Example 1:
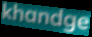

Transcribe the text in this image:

khandge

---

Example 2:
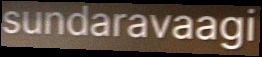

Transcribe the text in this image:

sundaravaagi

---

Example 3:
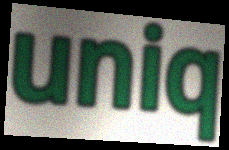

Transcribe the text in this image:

uniq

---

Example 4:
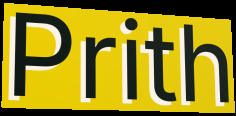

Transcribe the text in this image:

Prith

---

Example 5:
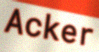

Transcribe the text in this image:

Acker